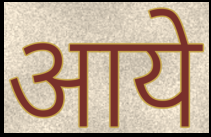
आये